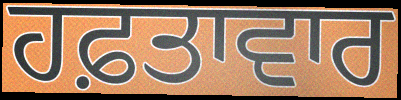
ਹਫ਼ਤਾਵਾਰ